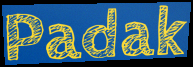
Padak